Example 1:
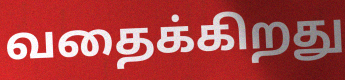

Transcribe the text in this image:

வதைக்கிறது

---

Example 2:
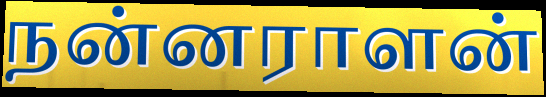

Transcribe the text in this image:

நன்னராளன்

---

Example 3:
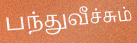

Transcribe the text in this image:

பந்துவீச்சும்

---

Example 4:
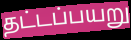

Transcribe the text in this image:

தட்டப்பயறு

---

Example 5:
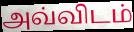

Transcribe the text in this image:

அவ்விடம்